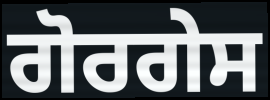
ਗੋਰਗੇਸ